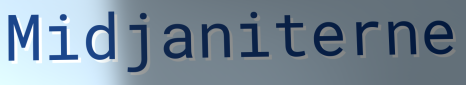
Midjaniterne